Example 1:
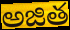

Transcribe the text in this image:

అజిత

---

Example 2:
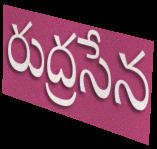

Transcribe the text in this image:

రుద్రసేన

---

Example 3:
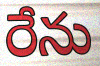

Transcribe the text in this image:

రేను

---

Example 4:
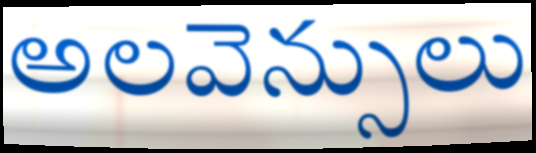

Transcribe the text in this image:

అలవెన్సులు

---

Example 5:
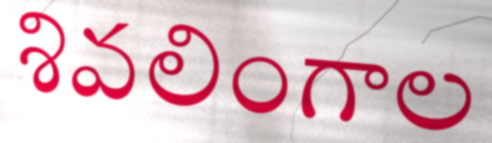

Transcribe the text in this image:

శివలింగాల